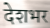
देशभर